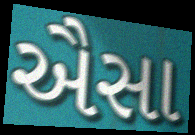
ઐસા